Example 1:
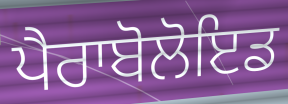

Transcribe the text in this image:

ਪੈਰਾਬੋਲੋਇਡ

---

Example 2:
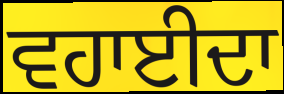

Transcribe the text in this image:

ਵਹਾਈਦਾ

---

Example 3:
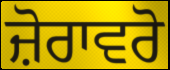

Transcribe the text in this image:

ਜ਼ੋਰਾਵਰੋ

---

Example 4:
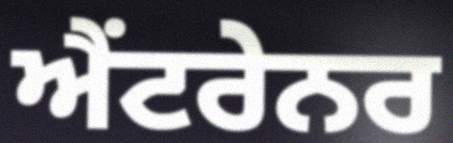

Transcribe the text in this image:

ਐਂਟਰੇਨਰ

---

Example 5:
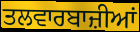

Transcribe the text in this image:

ਤਲਵਾਰਬਾਜ਼ੀਆਂ